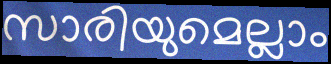
സാരിയുമെല്ലാം